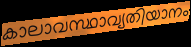
കാലാവസ്ഥാവ്യതിയാനം